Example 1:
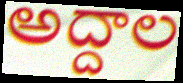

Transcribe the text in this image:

అద్దాల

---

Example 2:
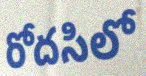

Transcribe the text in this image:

రోదసిలో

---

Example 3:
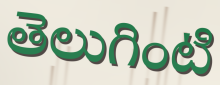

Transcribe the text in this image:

తెలుగింటి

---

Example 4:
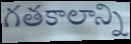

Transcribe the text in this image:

గతకాలాన్ని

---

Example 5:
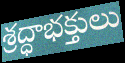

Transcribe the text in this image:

శ్రద్ధాభక్తులు